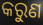
କରୁଣ